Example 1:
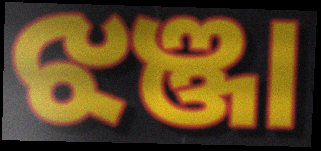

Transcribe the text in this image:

ଝଞ୍ଜା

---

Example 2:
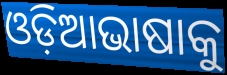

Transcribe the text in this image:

ଓଡ଼ିଆଭାଷାକୁ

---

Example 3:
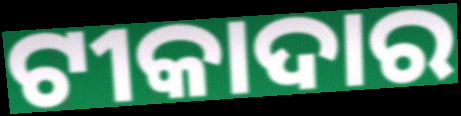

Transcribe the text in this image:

ଟୀକାଦାର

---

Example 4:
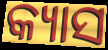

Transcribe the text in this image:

କ୍ୟାସ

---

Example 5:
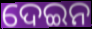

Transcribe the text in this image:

ଦେଇନ